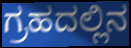
ಗ್ರಹದಲ್ಲಿನ